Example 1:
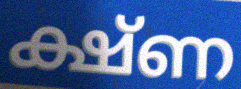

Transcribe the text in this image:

ക്ഷ്ണ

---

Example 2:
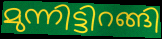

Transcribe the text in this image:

മുന്നിട്ടിറങ്ങി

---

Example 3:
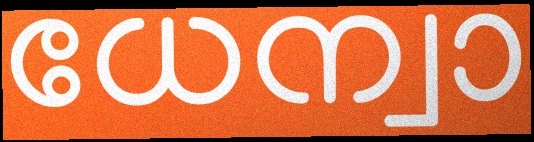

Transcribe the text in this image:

ധേന്വാ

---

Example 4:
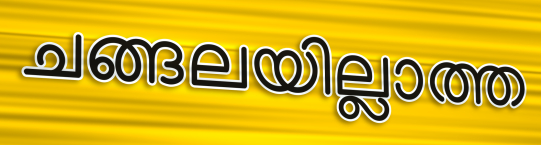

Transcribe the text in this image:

ചങ്ങലയില്ലാത്ത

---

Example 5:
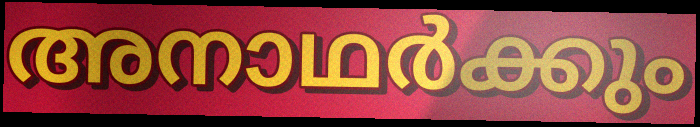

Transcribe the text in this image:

അനാഥർക്കും